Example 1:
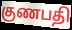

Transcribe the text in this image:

குணபதி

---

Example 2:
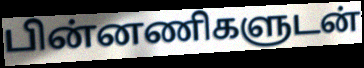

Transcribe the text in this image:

பின்னணிகளுடன்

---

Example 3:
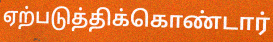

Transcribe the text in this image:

ஏற்படுத்திக்கொண்டார்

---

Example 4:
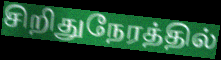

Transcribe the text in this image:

சிறிதுநேரத்தில்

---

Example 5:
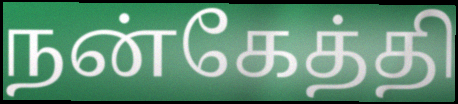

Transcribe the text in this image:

நன்கேத்தி